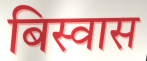
बिस्वास